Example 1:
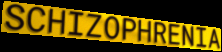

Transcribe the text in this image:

SCHIZOPHRENIA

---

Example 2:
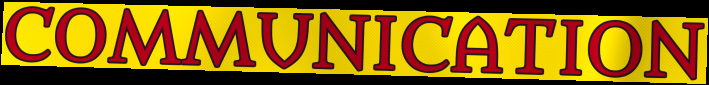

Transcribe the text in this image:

COMMUNICATION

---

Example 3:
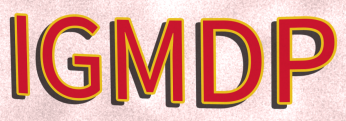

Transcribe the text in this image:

IGMDP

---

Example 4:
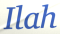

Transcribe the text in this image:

Ilah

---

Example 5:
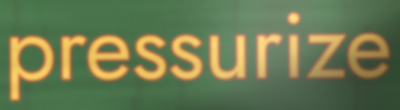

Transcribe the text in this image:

pressurize